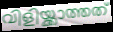
വിളിയ്ക്കാത്തത്